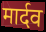
मार्दव